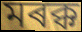
মৰক্ক